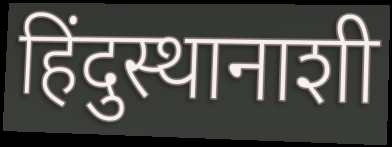
हिंदुस्थानाशी